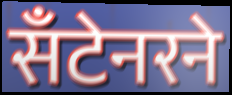
सँटेनरने